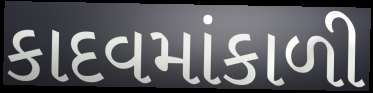
કાદવમાંકાળી